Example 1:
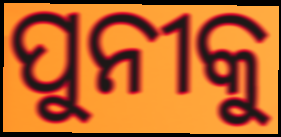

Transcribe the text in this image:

ପୁନୀକୁ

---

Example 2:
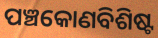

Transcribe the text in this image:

ପଞ୍ଚକୋଣବିଶିଷ୍ଟ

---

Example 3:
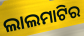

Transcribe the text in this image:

ଲାଲମାଟିର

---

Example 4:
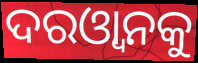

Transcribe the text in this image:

ଦରଓ୍ୱାନକୁ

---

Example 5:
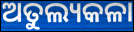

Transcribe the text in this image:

ଅତୁଲ୍ୟକଳା